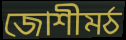
জোশীমঠ